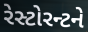
રેસ્ટોરન્ટને